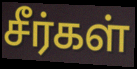
சீர்கள்